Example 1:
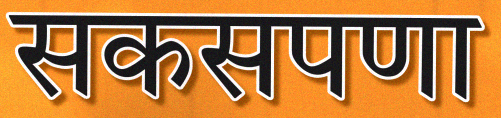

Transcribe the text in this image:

सकसपणा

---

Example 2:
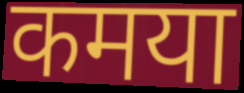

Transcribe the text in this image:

कमया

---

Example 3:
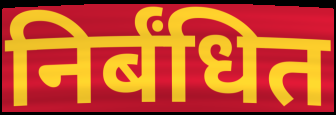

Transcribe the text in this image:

निर्बंधित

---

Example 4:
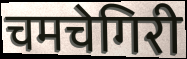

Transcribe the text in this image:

चमचेगिरी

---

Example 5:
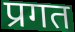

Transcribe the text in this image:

प्रगत